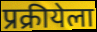
प्रक्रीयेला